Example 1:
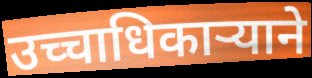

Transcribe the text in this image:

उच्चाधिकाऱ्याने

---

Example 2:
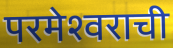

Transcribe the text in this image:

परमेश्वराची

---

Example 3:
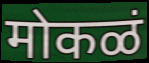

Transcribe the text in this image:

मोकळं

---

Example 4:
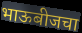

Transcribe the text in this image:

भाऊबीजचा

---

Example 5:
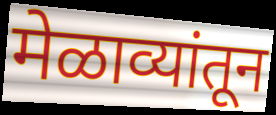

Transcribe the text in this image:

मेळाव्यांतून